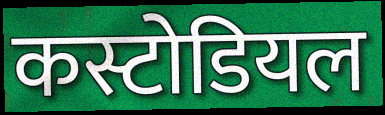
कस्टोडियल